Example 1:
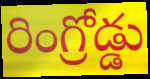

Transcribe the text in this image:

రింగ్రోడ్డు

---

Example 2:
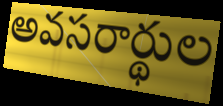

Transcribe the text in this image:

అవసరార్థుల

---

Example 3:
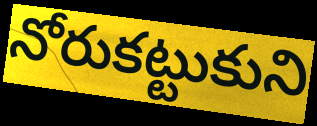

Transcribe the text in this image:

నోరుకట్టుకుని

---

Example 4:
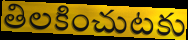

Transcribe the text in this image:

తిలకించుటకు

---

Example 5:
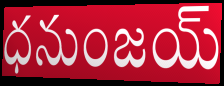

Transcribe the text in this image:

ధనుంజయ్